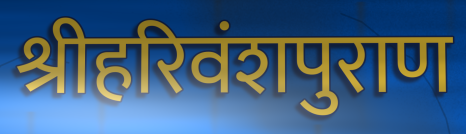
श्रीहरिवंशपुराण